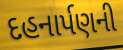
દહનાર્પણની